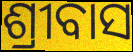
ଶ୍ରୀବାସ